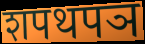
शपथपञ